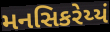
મનસિકરેય્યં